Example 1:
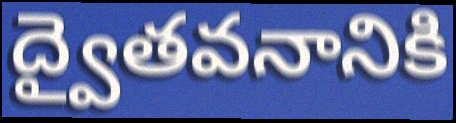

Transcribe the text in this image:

ద్వైతవనానికి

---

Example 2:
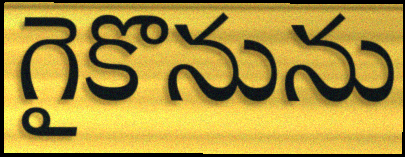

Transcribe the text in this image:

గైకొనును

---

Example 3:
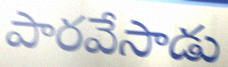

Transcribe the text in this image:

పారవేసాడు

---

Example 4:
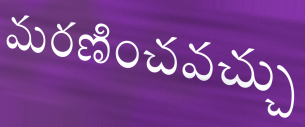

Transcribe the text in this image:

మరణించవచ్చు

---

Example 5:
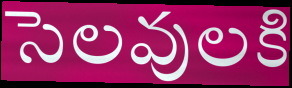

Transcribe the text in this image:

సెలవులకి